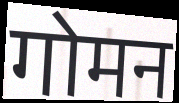
गोमन